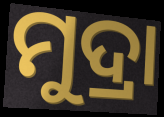
ମୁଦ୍ରା